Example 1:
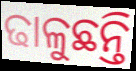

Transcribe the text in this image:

ଢାଳୁଛନ୍ତି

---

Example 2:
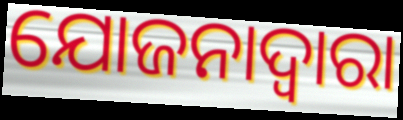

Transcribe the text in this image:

ଯୋଜନାଦ୍ବାରା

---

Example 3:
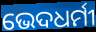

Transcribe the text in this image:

ଭେଦଧର୍ମୀ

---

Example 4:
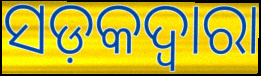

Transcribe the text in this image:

ସଡ଼କଦ୍ୱାରା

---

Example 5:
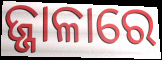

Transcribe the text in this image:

ଜ୍ଜାଳାରେ